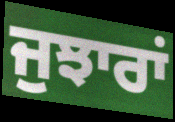
ਜੁਝਾਰਾਂ